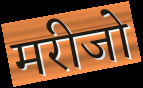
मरीजो